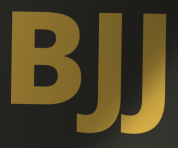
BJJ